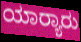
ಯಾರ‍್ಯಾರು